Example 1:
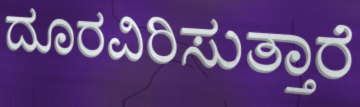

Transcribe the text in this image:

ದೂರವಿರಿಸುತ್ತಾರೆ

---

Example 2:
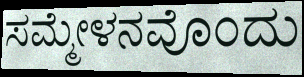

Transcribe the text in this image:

ಸಮ್ಮೇಳನವೊಂದು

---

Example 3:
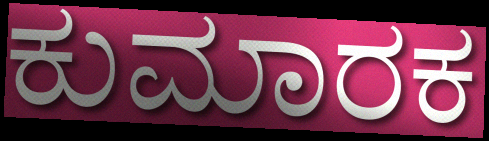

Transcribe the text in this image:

ಕುಮಾರಕ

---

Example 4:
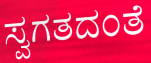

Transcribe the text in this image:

ಸ್ವಗತದಂತೆ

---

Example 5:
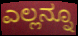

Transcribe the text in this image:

ಎಲ್ಲನ್ನೂ